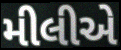
મીલીએ